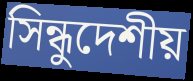
সিন্ধুদেশীয়